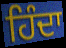
ਹਿੰਦਾ